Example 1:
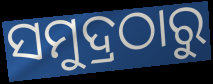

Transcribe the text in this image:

ସମୁଦ୍ରଠାରୁ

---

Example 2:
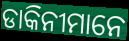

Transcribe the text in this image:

ଡାକିନୀମାନେ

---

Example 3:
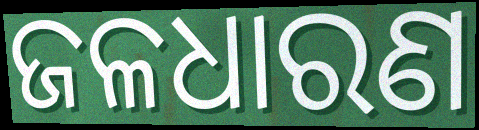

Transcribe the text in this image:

ଜଳଧାରଣ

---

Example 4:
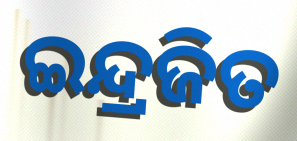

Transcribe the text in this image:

ଇନ୍ଦ୍ରଜିତ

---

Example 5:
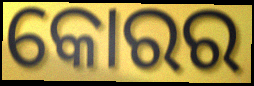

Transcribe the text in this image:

କୋରର